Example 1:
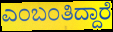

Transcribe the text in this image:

ಎಂಬಂತಿದ್ದಾರೆ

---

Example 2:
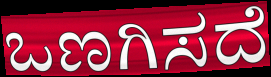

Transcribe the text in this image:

ಒಣಗಿಸದೆ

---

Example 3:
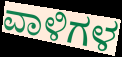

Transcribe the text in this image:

ವಾಳಿಗಳ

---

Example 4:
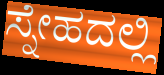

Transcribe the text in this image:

ಸ್ನೇಹದಲ್ಲಿ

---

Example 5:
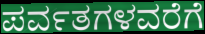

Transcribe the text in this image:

ಪರ್ವತಗಳವರೆಗೆ